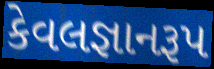
કેવલજ્ઞાનરૂપ